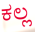
ಕಲ್ಲ